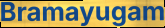
Bramayugam